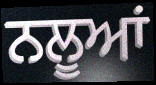
ਨਲੂਆਂ